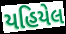
યહિયેલ